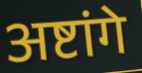
अष्टांगे